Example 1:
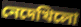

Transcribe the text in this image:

নেদেখিলো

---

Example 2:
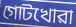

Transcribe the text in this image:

গোটখোৱা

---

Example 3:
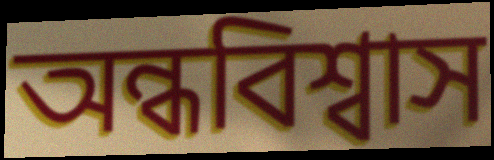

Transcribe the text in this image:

অন্ধবিশ্বাস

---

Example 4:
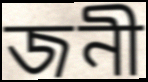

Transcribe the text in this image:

জনী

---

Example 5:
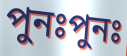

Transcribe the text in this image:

পুনঃপুনঃ